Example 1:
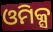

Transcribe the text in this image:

ଓମିକ୍ସ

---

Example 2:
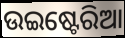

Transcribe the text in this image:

ଉଇଷ୍ଟେରିଆ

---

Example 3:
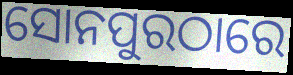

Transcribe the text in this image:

ସୋନପୁରଠାରେ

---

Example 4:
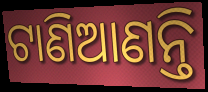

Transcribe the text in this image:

ଟାଣିଆଣନ୍ତି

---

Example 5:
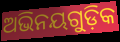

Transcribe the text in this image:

ଅଭିନୟଗୁଡ଼ିକ